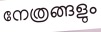
നേത്രങ്ങളും